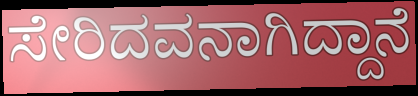
ಸೇರಿದವನಾಗಿದ್ದಾನೆ